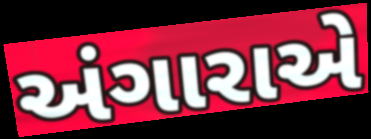
અંગારાએ